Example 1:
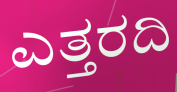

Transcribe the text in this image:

ಎತ್ತರದಿ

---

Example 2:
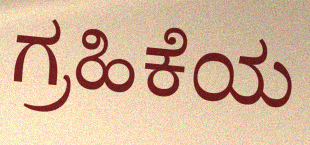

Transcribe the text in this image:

ಗ್ರಹಿಕೆಯ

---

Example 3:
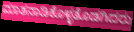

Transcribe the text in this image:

ಮಾತನಾಡಿಕೊಳ್ಳತೊಡಗಿದರು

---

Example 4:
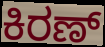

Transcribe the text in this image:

ಕಿರಣ್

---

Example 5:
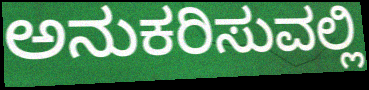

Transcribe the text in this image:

ಅನುಕರಿಸುವಲ್ಲಿ